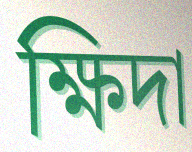
ক্ষিদা